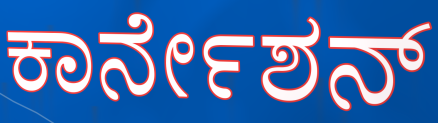
ಕಾರ್ನೇಶನ್